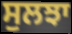
ਸੁਲਝਾ